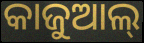
କାଜୁଆଲ୍